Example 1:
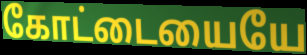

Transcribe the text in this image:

கோட்டையையே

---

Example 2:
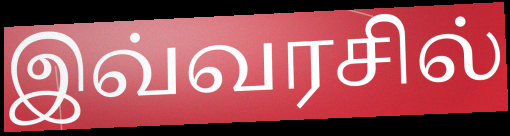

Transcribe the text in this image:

இவ்வரசில்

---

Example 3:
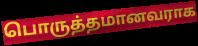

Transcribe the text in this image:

பொருத்தமானவராக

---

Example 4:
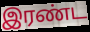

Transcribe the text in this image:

இரண்ட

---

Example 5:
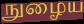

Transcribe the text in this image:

நுழைய